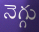
నెగ్గు